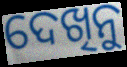
ଦେଖିନୁ